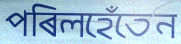
পৰিলহেঁতেন